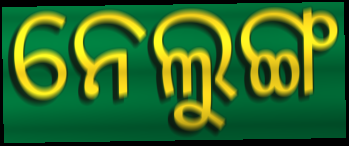
ନେଲୁଙ୍ଗ